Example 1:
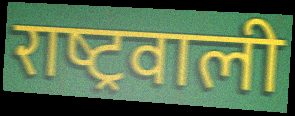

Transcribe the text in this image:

राष्ट्रवाली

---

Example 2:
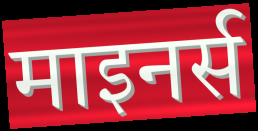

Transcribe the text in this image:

माइनर्स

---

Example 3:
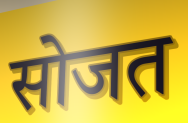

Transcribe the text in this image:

सोजत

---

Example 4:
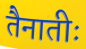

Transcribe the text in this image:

तैनातीः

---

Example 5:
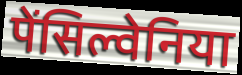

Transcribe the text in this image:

पेंसिल्वेनिया